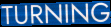
TURNING